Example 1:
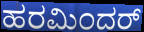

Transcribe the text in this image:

ಹರಮಿಂದರ್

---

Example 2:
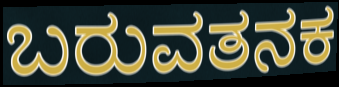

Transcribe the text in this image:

ಬರುವತನಕ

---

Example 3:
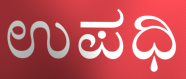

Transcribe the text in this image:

ಉಪಧಿ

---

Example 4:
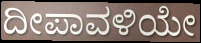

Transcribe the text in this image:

ದೀಪಾವಳಿಯೇ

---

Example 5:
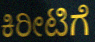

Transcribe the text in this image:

ಕಿರೀಟಿಗೆ